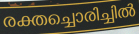
രക്തച്ചൊരിച്ചിൽ